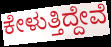
ಕೇಳುತ್ತಿದ್ದೇವೆ